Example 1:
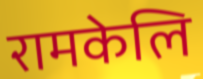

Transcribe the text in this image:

रामकेलि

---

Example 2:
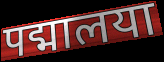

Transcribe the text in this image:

पद्मालया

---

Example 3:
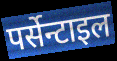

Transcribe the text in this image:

पर्सेन्टाइल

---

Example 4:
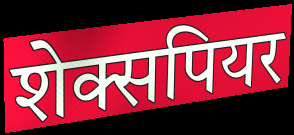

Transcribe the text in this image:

शेक्सपियर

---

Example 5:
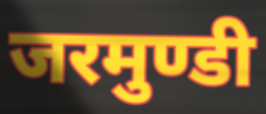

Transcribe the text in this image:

जरमुण्डी